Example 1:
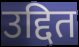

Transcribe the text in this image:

उद्दित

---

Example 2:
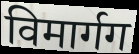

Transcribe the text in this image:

विमार्गग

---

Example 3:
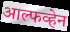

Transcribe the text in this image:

आल्फव्हेन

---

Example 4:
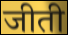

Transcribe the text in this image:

जीती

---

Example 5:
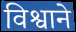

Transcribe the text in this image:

विश्वाने